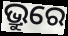
ଭ୍ରୁରେ